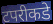
टपरीकडे